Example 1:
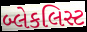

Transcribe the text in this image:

બ્લેકલિસ્ટ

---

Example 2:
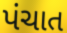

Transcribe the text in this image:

પંચાત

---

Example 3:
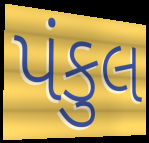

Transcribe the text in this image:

પંકુલ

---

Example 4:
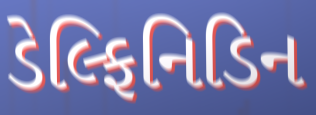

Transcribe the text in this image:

ડેલ્ફિનિડિન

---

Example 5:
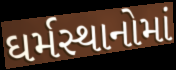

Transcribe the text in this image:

ઘર્મસ્થાનોમાં